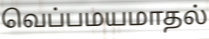
வெப்பமயமாதல்